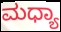
ಮಧ್ಯಾ